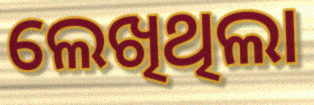
ଲେଖିଥିଲା